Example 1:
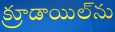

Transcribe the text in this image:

క్రూడాయిల్‌ను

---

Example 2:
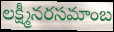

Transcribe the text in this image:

లక్ష్మీనరసమాంబ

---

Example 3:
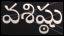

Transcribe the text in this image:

వశిష్ఠు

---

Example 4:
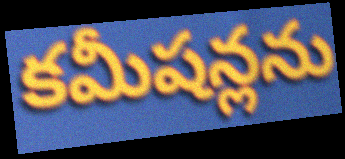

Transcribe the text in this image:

కమీషన్లను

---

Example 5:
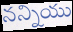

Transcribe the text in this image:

నన్నియు